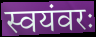
स्वयंवरः